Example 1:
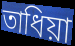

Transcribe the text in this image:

তাধিয়া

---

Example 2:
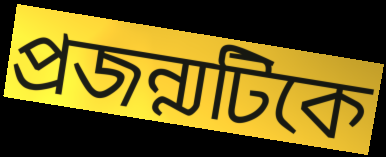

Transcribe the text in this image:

প্রজন্মটিকে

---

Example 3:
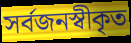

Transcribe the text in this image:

সর্বজনস্বীকৃত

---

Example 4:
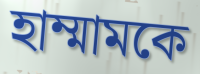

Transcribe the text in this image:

হাম্মামকে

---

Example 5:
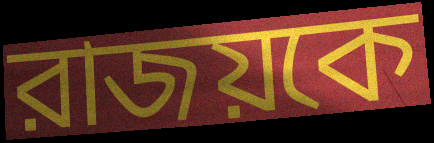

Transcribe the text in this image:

রাজয়কে